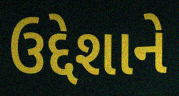
ઉદ્દેશાને